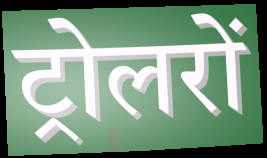
ट्रोलरों